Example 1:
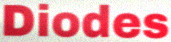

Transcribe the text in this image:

Diodes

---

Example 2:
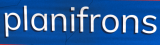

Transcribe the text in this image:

planifrons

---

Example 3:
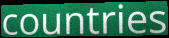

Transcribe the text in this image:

countries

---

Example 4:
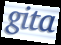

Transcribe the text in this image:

gita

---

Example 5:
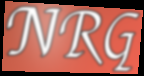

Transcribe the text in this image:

NRG